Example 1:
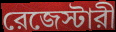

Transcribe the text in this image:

রেজেস্টারী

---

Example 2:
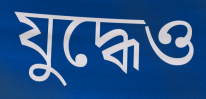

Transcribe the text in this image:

যুদ্ধেও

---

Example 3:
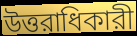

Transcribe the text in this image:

উত্তরাধিকারী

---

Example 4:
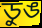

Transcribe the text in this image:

ডুঙ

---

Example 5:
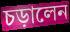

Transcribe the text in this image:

চড়ালেন